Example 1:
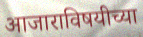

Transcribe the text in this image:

आजाराविषयीच्या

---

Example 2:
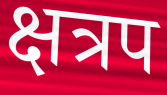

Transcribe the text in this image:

क्षत्रप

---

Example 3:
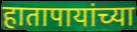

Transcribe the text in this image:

हातापायांच्या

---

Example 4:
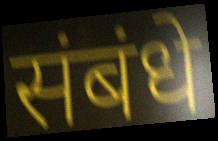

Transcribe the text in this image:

संबंधे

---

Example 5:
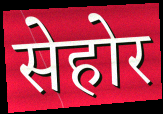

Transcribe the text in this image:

सेहोर